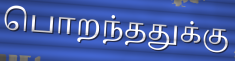
பொறந்ததுக்கு